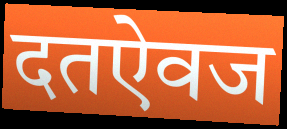
दतऐवज